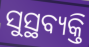
ସୁସ୍ଥବ୍ୟକ୍ତି